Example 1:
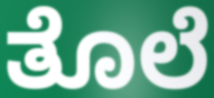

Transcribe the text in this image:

ತೊಲೆ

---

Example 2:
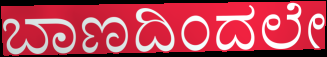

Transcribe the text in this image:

ಬಾಣದಿಂದಲೇ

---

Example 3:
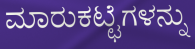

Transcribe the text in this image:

ಮಾರುಕಟ್ಟೆಗಳನ್ನು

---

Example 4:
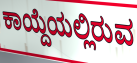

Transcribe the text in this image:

ಕಾಯ್ದೆಯಲ್ಲಿರುವ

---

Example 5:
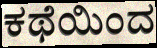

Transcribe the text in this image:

ಕಥೆಯಿಂದ